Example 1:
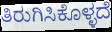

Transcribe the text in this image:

ತಿರುಗಿಸಿಕೊಳ್ಳದೆ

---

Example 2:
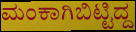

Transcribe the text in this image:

ಮಂಕಾಗಿಬಿಟ್ಟಿದ್ದ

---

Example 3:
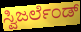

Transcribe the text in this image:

ಸ್ವಿಜರ್ಲೆಂಡ್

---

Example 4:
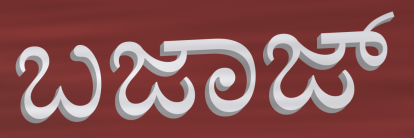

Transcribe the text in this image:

ಬಜಾಜ್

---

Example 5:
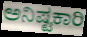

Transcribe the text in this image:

ಅನಿಷ್ಟಕಾರಿ